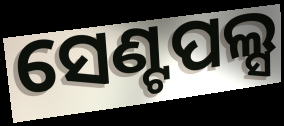
ସେଣ୍ଟପଲ୍ସ